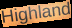
Highland